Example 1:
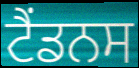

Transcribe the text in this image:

ਟੈਂਡਨਸ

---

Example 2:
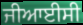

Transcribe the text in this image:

ਜੀਆਈਸੀ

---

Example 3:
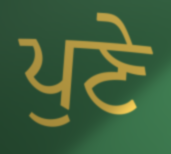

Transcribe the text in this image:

ਪੁਣੇ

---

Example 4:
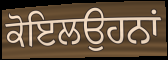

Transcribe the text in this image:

ਕੋਇਲਉਹਨਾਂ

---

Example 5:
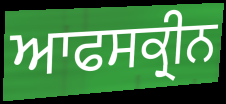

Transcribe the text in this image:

ਆਫਸਕ੍ਰੀਨ